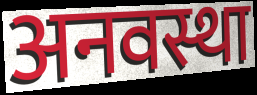
अनवस्था